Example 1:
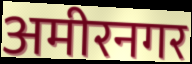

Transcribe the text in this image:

अमीरनगर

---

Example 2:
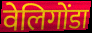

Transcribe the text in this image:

वेलिगोंडा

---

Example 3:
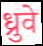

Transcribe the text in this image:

ध्रुवे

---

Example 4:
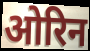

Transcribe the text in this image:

ओरिन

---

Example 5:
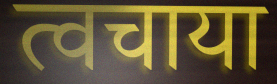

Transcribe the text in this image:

त्वचाया